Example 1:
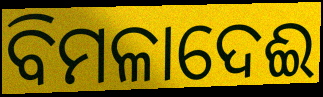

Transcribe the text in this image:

ବିମଳାଦେଈ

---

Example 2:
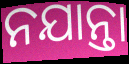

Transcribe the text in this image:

ନଯାନ୍ତା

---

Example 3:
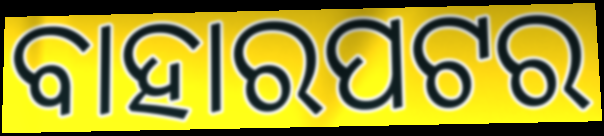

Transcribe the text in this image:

ବାହାରପଟର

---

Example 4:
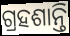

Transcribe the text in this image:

ଗ୍ରହଶାନ୍ତି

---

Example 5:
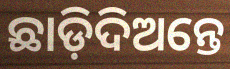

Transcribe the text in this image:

ଛାଡ଼ିଦିଅନ୍ତେ